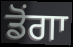
ਡੋਂਗਾ